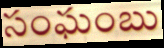
సంఘంబు